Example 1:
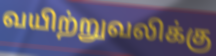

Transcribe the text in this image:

வயிற்றுவலிக்கு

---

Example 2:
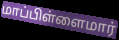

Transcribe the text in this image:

மாப்பிள்ளைமார்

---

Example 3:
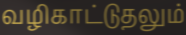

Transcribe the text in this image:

வழிகாட்டுதலும்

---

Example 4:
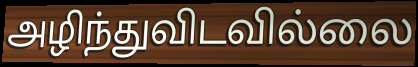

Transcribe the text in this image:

அழிந்துவிடவில்லை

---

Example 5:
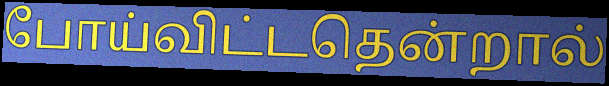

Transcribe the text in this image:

போய்விட்டதென்றால்